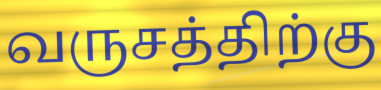
வருசத்திற்கு